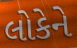
લોકેને